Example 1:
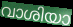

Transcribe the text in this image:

വാശിയാ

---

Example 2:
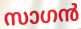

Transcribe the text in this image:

സാഗൻ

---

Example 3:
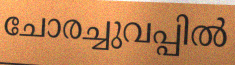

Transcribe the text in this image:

ചോരച്ചുവപ്പിൽ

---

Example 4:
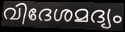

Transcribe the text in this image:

വിദേശമദ്യം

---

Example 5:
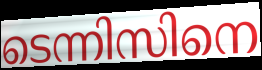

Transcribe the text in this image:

ടെന്നിസിനെ